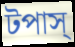
টপাস্